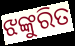
ଝଙ୍କୁରିତ